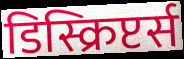
डिस्क्रिप्टर्स